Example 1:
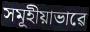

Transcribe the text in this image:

সমূহীয়াভাৱে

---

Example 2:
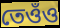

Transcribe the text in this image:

তেওঁও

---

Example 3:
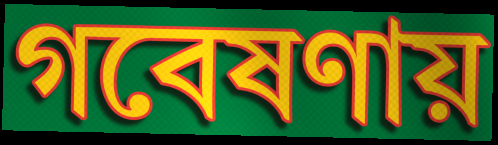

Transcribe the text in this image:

গবেষণায়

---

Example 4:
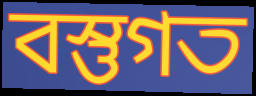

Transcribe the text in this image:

বস্তুগত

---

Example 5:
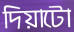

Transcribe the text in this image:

দিয়াটো